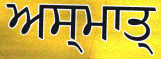
ਅਸ੍ਮਾਤ੍